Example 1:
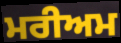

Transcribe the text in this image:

ਮਰੀਅਮ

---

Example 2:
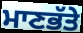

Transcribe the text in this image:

ਮਾਣਭੱਤੇ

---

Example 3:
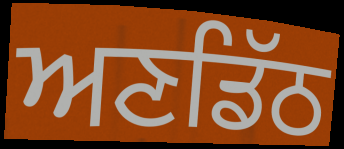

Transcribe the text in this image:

ਅਣਡਿੱਠ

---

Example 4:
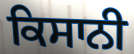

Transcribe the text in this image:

ਕਿਸਾਨੀ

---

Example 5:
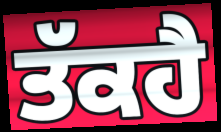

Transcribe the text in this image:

ਤੱਕਹੈ